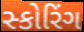
સ્કોરિંગ